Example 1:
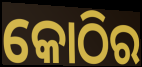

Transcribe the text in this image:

କୋଠିର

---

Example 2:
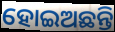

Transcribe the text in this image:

ହୋଇଅଛନ୍ତି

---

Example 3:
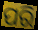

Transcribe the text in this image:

ପରି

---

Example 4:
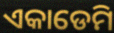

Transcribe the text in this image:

ଏକାଡେମି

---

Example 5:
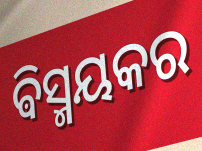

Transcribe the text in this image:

ଵିସ୍ମୟକର